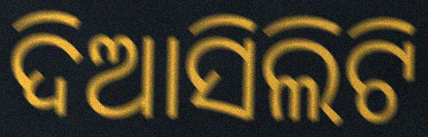
ଦିଆସିଲିଟି